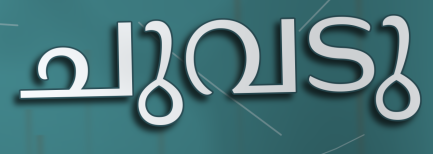
ചുവടു